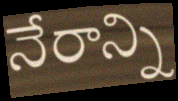
నేరాన్ని